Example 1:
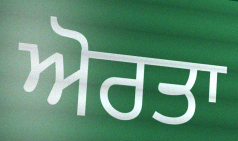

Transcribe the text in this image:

ਅੋਰਤਾ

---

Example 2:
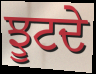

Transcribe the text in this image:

ਝੂਟਦੇ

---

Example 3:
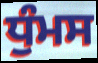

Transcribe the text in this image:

ਧੁੰਮਸ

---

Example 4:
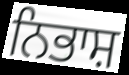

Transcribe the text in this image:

ਨਿਭਾਸ਼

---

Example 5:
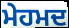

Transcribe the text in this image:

ਮੇਹਮਦ